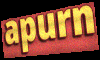
apurn